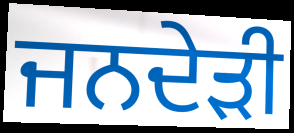
ਜਨਦੇੜੀ